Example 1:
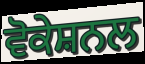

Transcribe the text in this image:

ਵੋਕੇਸ਼ਨਲ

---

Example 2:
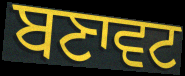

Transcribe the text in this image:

ਬਣਾਵਟ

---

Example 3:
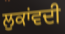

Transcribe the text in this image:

ਲੁਕਾਂਵਦੀ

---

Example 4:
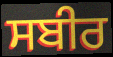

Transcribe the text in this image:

ਸਬੀਰ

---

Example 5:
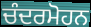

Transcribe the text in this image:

ਚੰਦਰਮੋਹਨ